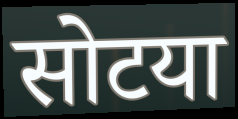
सोटया